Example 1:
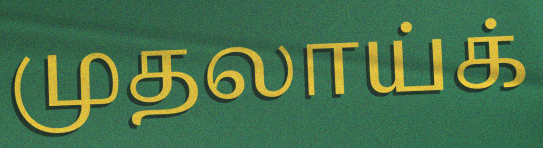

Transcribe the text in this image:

முதலாய்க்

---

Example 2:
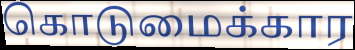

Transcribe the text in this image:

கொடுமைக்கார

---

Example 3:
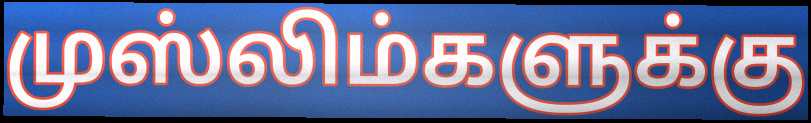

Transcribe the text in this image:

முஸ்லிம்களுக்கு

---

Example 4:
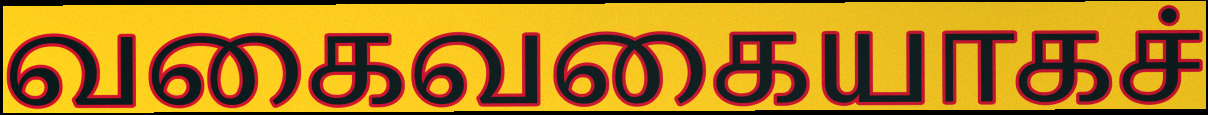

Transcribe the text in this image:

வகைவகையாகச்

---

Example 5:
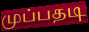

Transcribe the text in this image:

முப்பதடி